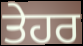
ਤੇਹਰ